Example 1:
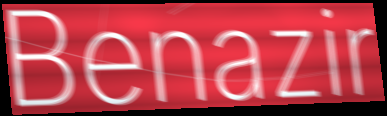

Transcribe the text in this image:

Benazir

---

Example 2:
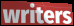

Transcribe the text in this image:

writers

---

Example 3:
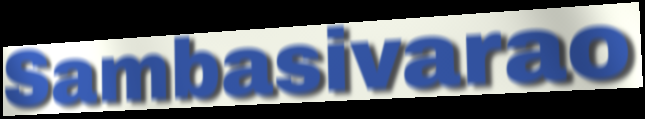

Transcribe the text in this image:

Sambasivarao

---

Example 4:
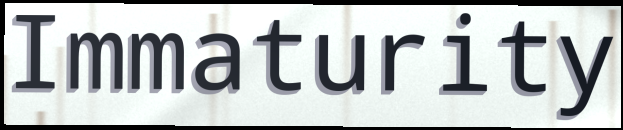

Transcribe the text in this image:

Immaturity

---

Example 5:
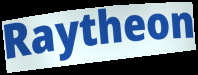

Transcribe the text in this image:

Raytheon